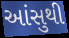
આંસુથી